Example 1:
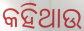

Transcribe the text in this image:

କହିଥାଉ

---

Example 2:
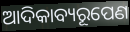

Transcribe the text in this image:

ଆଦିକାବ୍ୟରୂପେଣ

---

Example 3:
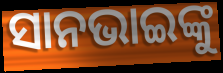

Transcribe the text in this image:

ସାନଭାଇଙ୍କୁ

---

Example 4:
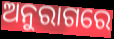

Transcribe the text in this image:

ଅନୁରାଗରେ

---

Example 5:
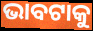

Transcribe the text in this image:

ଭାବଟାକୁ